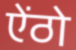
ऐंठो